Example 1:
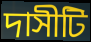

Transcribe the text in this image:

দাসীটি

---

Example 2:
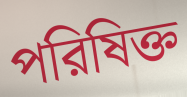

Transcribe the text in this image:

পরিষিক্ত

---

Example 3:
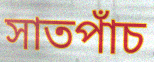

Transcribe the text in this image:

সাতপাঁচ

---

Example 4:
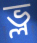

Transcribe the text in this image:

ভ্ল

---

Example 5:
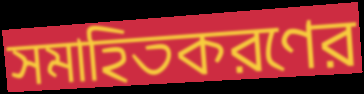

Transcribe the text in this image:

সমাহিতকরণের